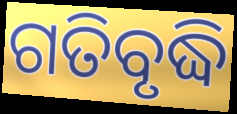
ଗତିବୃଦ୍ଧି